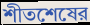
শীতশেষের